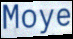
Moye